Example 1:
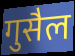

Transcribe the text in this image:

गुसैल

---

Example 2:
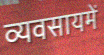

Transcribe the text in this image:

व्यवसायमें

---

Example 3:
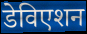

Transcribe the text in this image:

डेविएशन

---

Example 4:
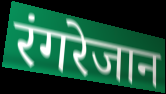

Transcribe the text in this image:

रंगरेजान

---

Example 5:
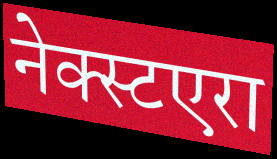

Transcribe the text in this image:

नेक्स्टएरा